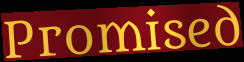
Promised